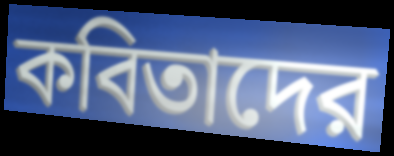
কবিতাদের